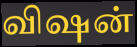
விஷன்